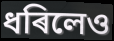
ধৰিলেও